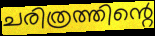
ചരിത്രത്തിന്റെ